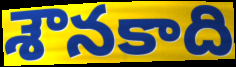
శౌనకాది